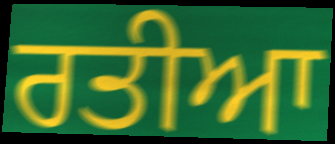
ਰਤੀਆ